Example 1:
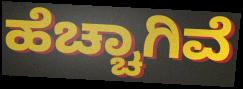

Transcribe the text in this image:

ಹೆಚ್ಚಾಗಿವೆ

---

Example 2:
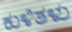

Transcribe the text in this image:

ಕುಳಿತಳು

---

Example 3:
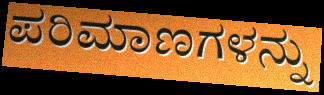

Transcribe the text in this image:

ಪರಿಮಾಣಗಳನ್ನು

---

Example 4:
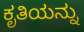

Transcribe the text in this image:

ಕೃತಿಯನ್ನು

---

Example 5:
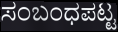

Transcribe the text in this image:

ಸಂಬಂಧಪಟ್ಟ